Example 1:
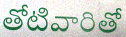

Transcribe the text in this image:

తోటివారితో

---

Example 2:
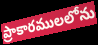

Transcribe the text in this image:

ప్రాకారములలోను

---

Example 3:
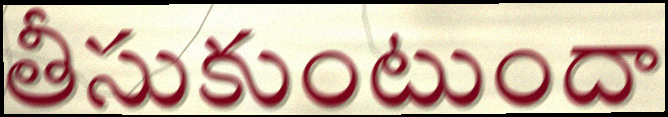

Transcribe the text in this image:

తీసుకుంటుందా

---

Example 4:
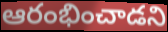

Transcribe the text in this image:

ఆరంభించాడని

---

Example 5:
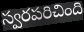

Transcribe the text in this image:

స్వరపరిచింది